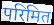
परिमित